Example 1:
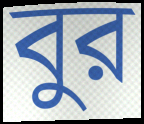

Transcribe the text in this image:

বুর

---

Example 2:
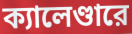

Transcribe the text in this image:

ক্যালেণ্ডারে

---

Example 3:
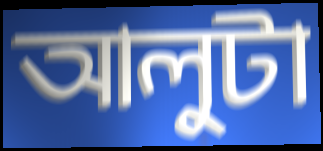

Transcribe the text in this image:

আলুটা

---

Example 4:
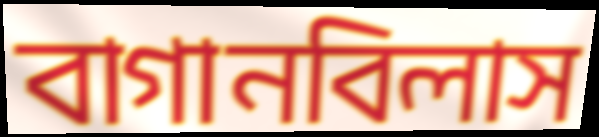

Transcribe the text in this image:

বাগানবিলাস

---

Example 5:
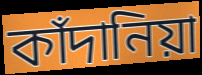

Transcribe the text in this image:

কাঁদানিয়া